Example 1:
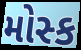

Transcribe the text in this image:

મોસ્ક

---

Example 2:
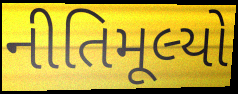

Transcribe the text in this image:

નીતિમૂલ્યો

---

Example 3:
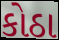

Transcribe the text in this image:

કોઠા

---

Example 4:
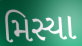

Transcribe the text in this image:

મિસ્યા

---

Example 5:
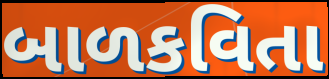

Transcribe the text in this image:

બાળકવિતા